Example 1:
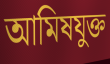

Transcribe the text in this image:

আমিষযুক্ত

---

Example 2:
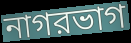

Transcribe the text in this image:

নাগরভাগ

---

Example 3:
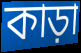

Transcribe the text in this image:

কাড়া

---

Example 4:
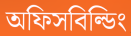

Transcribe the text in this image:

অফিসবিল্ডিং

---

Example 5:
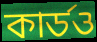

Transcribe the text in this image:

কার্ডও